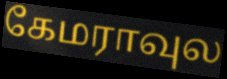
கேமராவுல